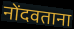
नोंदवताना